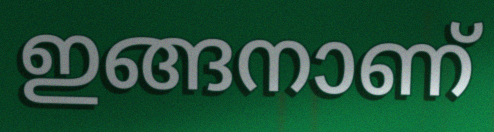
ഇങ്ങനാണ്